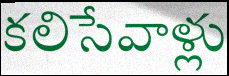
కలిసేవాళ్లు